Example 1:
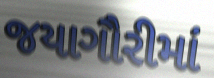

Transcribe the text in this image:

જયાગૌરીમાં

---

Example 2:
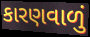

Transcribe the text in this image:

કારણવાળું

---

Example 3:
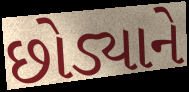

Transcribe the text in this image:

છોડ્યાને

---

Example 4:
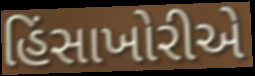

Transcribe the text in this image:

હિંસાખોરીએ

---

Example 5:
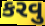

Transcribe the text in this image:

કરવુ